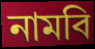
নামবি